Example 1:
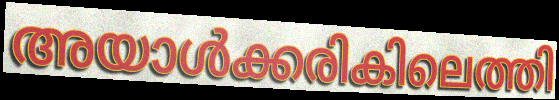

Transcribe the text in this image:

അയാൾക്കരികിലെത്തി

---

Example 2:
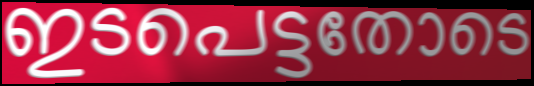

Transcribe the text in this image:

ഇടപെട്ടതോടെ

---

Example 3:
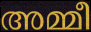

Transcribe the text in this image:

അമ്മീ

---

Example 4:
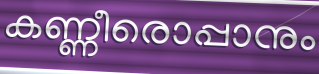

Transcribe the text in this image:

കണ്ണീരൊപ്പാനും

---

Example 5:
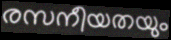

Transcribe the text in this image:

രസനീയതയും